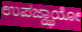
ಉಪಜ್ಝಾಯೋ